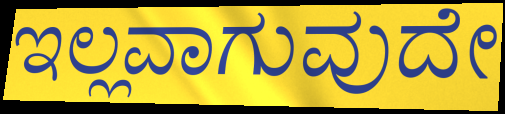
ಇಲ್ಲವಾಗುವುದೇ